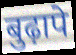
बुढ़ापे